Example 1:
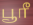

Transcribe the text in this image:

பூரீ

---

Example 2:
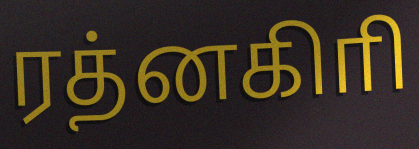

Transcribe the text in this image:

ரத்னகிரி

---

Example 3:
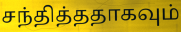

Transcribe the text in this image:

சந்தித்ததாகவும்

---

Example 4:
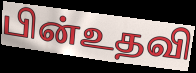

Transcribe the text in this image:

பின்உதவி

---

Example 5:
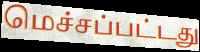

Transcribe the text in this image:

மெச்சப்பட்டது